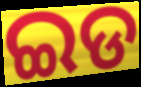
ଇଡ